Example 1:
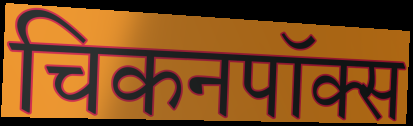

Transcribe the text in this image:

चिकनपॉक्स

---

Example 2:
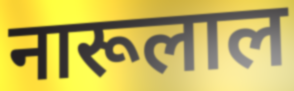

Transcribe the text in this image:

नारूलाल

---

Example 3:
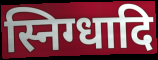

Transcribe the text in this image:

स्निग्धादि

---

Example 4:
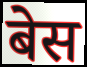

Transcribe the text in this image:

बेस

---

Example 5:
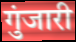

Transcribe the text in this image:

गुंजारी